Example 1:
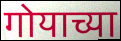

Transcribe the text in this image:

गोयाच्या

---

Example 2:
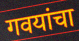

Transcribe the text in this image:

गवयांचा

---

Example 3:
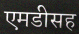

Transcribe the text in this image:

एमडीसह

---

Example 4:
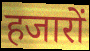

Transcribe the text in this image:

हजारों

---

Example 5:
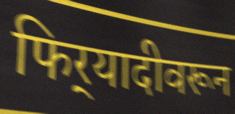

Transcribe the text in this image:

फिर्यादीवरून